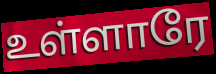
உள்ளாரே